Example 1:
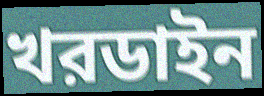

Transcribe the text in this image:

খরডাইন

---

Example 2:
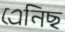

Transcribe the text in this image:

এেনিছ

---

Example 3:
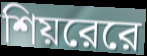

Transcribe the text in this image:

শিয়রেরে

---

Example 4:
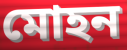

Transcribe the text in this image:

মোহন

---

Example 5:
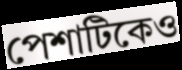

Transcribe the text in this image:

পেশাটিকেও